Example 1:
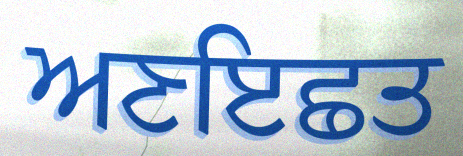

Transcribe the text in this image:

ਅਣਇਛਤ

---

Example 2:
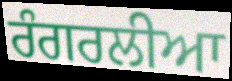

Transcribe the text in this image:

ਰੰਗਰਲੀਆ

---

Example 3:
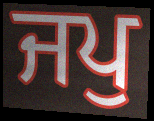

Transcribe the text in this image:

ਜਪੁ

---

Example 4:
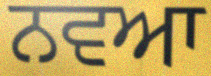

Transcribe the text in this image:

ਨਵਆ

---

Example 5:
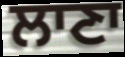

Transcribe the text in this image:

ਲਾਣਾ